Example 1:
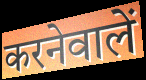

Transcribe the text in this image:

करनेवालें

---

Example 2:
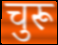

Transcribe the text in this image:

चुरू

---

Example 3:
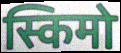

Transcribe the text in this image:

स्किमो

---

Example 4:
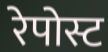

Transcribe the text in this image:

रेपोस्ट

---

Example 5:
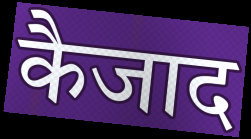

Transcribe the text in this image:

कैजाद